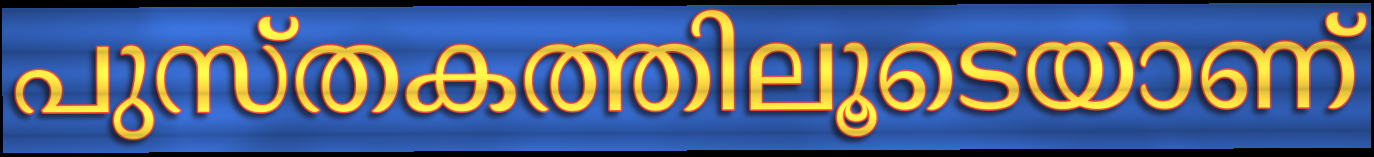
പുസ്തകത്തിലൂടെയാണ്